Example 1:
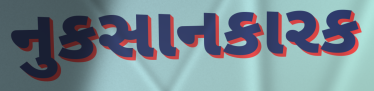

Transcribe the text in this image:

નુકસાનકારક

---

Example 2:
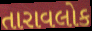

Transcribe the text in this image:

તારાવલોક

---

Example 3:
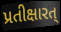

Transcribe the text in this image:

પ્રતીક્ષારત્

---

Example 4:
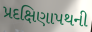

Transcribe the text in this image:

પ્રદક્ષિણાપથની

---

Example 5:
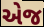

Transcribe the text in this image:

એજ